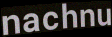
nachnu